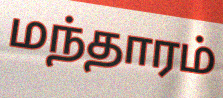
மந்தாரம்